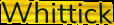
Whittick